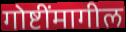
गोष्टींमागील